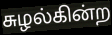
சுழல்கின்ற